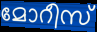
മോറീസ്